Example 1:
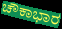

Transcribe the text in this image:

ಚೌಕಾಭಾರ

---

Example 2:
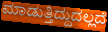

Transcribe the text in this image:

ಮಾಡುತ್ತಿದ್ದುದಲ್ಲದೆ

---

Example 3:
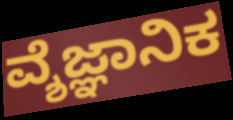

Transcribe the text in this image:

ವ್ಶೆಜ್ಞಾನಿಕ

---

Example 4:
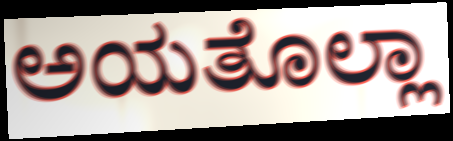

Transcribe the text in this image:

ಅಯತೊಲ್ಲಾ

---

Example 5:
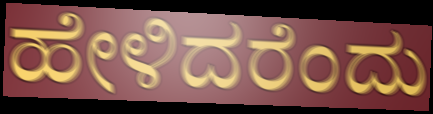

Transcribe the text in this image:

ಹೇಳಿದರೆಂದು